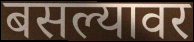
बसल्यावर